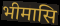
भीमासि